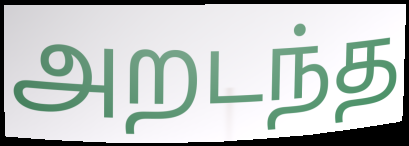
அறடந்த